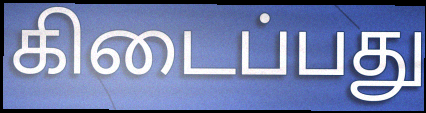
கிடைப்பது